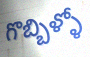
గొబ్బిళ్ళో